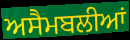
ਅਸੈਮਬਲੀਆਂ